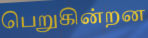
பெறுகின்றன